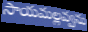
సాయమల్లవ్వను